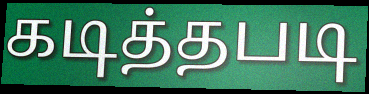
கடித்தபடி